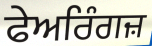
ਫੇਅਰਿੰਗਜ਼